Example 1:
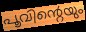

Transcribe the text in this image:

പൂവിന്റെയും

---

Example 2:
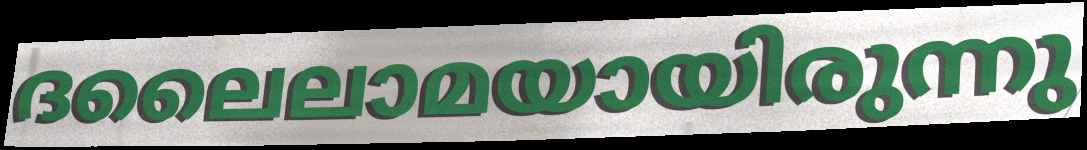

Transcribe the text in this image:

ദലൈലാമയായിരുന്നു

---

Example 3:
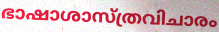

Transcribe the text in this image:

ഭാഷാശാസ്ത്രവിചാരം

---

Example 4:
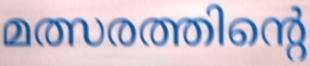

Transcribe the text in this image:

മത്സരത്തിന്റെ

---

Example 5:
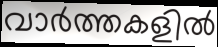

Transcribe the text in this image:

വാർത്തകളിൽ